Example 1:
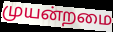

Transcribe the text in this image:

முயன்றமை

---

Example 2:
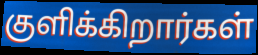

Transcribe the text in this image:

குளிக்கிறார்கள்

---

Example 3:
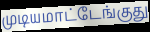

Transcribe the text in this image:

முடியமாட்டேங்குது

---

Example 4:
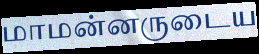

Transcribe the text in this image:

மாமன்னருடைய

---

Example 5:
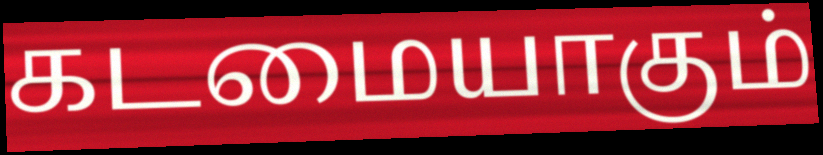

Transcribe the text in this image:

கடமையாகும்